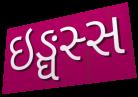
ઇઙ્ઘસ્સ